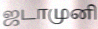
ஜடாமுனி